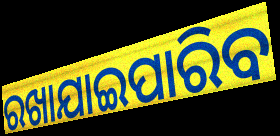
ରଖାଯାଇପାରିବ